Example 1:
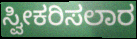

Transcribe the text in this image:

ಸ್ವೀಕರಿಸಲಾರ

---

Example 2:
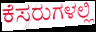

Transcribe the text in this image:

ಕೆಸರುಗಳಲ್ಲಿ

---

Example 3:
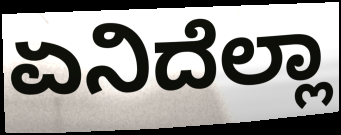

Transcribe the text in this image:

ಏನಿದೆಲ್ಲಾ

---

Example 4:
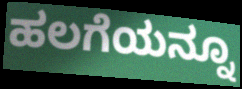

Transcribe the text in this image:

ಹಲಗೆಯನ್ನೂ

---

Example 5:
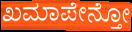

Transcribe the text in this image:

ಖಮಾಪೇನ್ತೋ